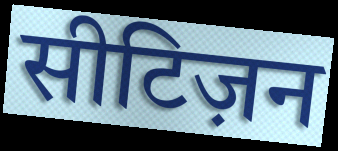
सीटिज़न